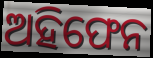
ଅହିଫେନ